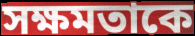
সক্ষমতাকে